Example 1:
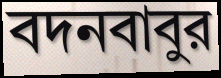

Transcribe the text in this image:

বদনবাবুর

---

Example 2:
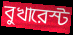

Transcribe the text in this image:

বুখারেস্ট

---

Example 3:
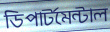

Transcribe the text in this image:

ডিপার্টমেন্টাল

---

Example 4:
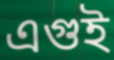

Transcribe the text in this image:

এগুই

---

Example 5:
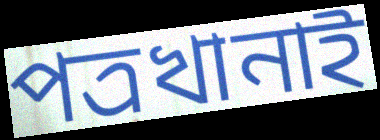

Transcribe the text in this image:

পত্রখানাই